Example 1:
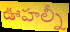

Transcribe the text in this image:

ఊహల్నీ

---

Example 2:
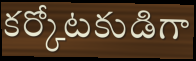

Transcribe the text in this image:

కర్కోటకుడిగా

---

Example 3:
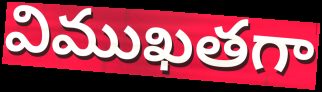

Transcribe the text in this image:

విముఖతగా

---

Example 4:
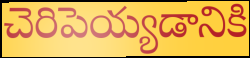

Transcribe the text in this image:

చెరిపెయ్యడానికి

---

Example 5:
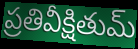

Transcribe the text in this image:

ప్రతివీక్షితుమ్